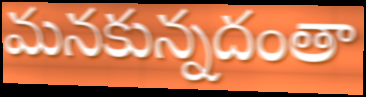
మనకున్నదంతా